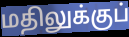
மதிலுக்குப்